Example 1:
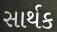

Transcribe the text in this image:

સાર્થક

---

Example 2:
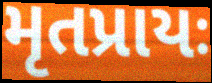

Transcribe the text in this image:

મૃતપ્રાયઃ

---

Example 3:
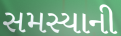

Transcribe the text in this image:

સમસ્યાની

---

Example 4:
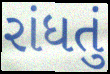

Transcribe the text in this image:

રાંધતું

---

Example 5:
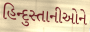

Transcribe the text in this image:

હિન્દુસ્તાનીઓને